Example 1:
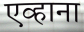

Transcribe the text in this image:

एव्हाना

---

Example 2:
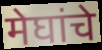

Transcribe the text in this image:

मेघांचे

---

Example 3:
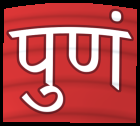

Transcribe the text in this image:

पुणं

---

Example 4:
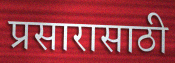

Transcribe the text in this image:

प्रसारासाठी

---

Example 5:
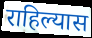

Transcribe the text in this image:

राहिल्यास